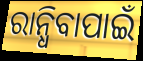
ରାନ୍ଧିବାପାଇଁ